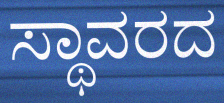
ಸ್ಥಾವರದ